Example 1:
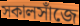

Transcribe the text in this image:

সকালসাঁজে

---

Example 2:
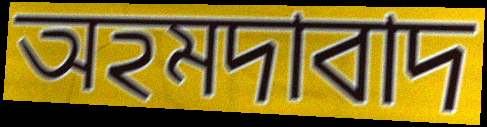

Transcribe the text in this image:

অহমদাবাদ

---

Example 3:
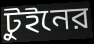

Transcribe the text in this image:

টুইনের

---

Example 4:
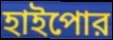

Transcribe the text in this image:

হাইপোর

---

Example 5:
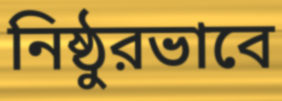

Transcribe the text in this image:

নিষ্ঠুরভাবে